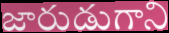
జారుడుగాని